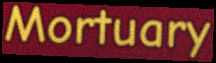
Mortuary